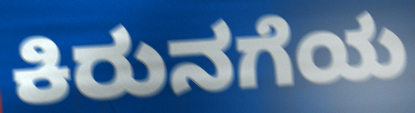
ಕಿರುನಗೆಯ